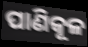
ପାଣିକୂଳ